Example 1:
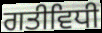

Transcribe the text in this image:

ਗਤੀਵਿਧੀ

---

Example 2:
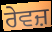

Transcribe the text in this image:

ਰੇਵਜ਼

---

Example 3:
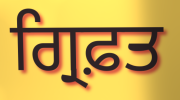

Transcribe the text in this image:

ਗ੍ਰਿਫ਼ਤ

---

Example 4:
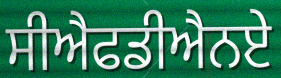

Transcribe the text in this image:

ਸੀਐਫਡੀਐਨਏ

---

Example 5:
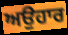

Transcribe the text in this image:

ਅਉਹਾਰ